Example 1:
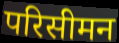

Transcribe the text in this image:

परिसीमन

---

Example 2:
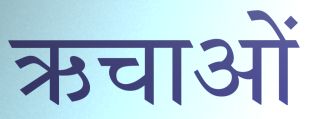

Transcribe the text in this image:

ऋचाओं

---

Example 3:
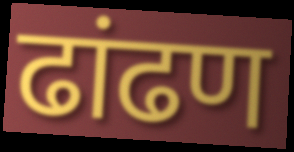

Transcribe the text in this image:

ढांढण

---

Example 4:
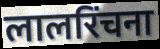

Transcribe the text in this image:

लालरिंचना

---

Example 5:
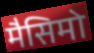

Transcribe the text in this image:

मैसिमो